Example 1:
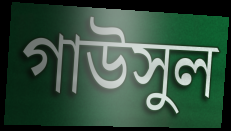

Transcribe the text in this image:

গাউসুল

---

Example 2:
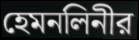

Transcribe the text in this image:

হেমনলিনীর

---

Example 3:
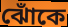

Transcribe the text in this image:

ঝোঁকে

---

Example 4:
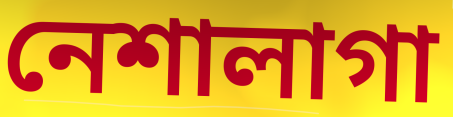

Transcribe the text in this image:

নেশালাগা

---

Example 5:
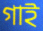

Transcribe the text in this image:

গাই